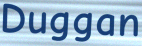
Duggan